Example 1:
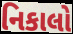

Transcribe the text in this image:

નિકાલો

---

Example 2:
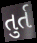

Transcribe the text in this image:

તુર્ત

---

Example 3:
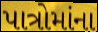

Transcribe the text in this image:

પાત્રોમાંના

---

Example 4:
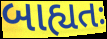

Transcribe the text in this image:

બાહ્યતઃ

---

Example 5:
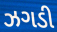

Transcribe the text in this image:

ઝગડી